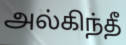
அல்கிந்தீ